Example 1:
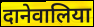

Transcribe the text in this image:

दानेवालिया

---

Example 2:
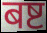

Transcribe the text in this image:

बष्ट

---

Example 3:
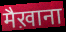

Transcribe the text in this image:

मैख़ाना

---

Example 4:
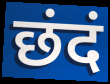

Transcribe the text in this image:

छंदं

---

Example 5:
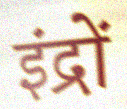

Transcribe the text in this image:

इंद्रों